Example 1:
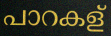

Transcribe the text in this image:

പാറകള്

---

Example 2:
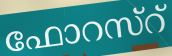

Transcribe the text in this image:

ഫോറസ്റ്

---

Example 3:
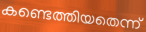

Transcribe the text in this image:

കണ്ടെത്തിയതെന്ന്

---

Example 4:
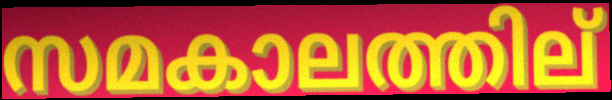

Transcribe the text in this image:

സമകാലത്തില്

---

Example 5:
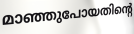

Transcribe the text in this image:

മാഞ്ഞുപോയതിന്റെ